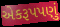
એકરૂપપણું